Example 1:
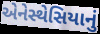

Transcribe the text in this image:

એનેસ્થેસિયાનું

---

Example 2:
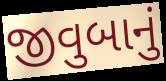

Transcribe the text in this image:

જીવુબાનું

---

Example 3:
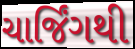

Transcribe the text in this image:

ચાર્જિંગથી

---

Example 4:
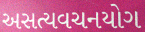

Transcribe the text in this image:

અસત્યવચનયોગ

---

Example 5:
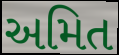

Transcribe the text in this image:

અમિત